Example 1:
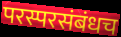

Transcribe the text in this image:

परस्परसंबंधच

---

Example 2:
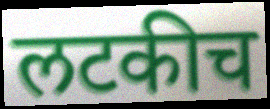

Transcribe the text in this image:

लटकीच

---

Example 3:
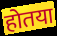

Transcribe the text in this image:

होतया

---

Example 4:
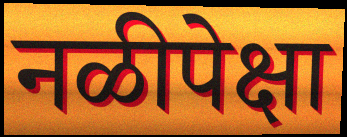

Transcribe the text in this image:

नळीपेक्षा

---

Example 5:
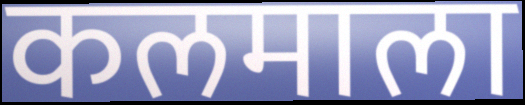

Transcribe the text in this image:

कलमाला